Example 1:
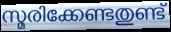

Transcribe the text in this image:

സ്മരിക്കേണ്ടതുണ്ട്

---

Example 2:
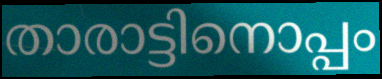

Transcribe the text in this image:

താരാട്ടിനൊപ്പം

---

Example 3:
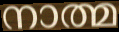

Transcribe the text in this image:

നാത്മ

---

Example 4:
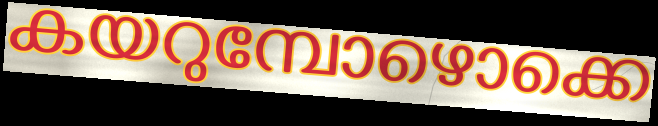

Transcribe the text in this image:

കയറുമ്പോഴൊക്കെ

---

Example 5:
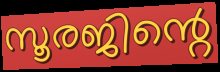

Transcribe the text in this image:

സൂരജിന്റെ